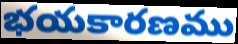
భయకారణము